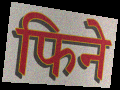
फिने